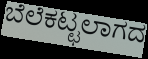
ಬೆಲೆಕಟ್ಟಲಾಗದ